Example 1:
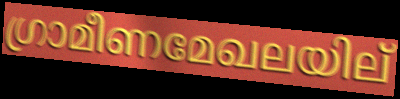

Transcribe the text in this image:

ഗ്രാമീണമേഖലയില്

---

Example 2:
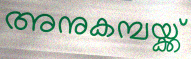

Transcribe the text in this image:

അനുകമ്പയ്ക്ക്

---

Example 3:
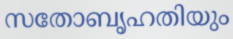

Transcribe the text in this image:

സതോബൃഹതിയും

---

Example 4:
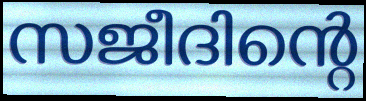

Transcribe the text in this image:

സജീദിന്റെ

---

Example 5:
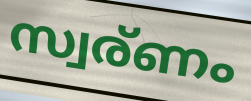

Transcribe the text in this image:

സ്വര്ണം